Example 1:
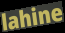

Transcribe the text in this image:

lahine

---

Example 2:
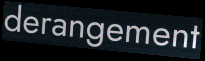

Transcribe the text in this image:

derangement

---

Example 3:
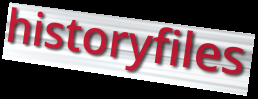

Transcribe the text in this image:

historyfiles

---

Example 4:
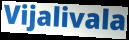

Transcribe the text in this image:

Vijalivala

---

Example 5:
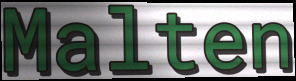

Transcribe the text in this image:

Malten